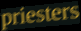
priesters